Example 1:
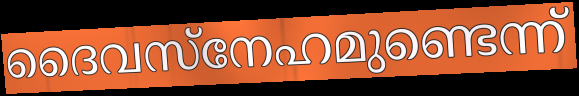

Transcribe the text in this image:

ദൈവസ്നേഹമുണ്ടെന്ന്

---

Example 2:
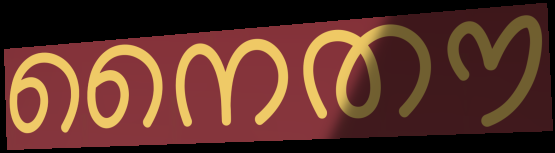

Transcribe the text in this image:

നൈതൗ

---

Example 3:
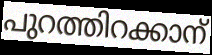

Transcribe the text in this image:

പുറത്തിറക്കാന്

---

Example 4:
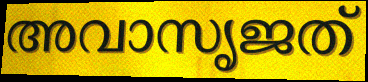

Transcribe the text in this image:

അവാസൃജത്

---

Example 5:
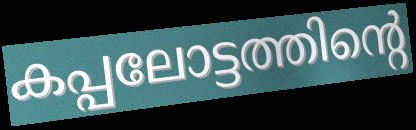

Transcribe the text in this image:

കപ്പലോട്ടത്തിന്റെ